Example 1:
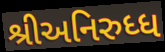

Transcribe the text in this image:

શ્રીઅનિરુધ્ધ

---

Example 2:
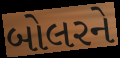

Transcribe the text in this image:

બોલરને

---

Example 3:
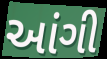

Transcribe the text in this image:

આંગી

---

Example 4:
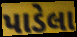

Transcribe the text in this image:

પાડેલા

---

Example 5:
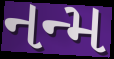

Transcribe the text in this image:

નન્મ